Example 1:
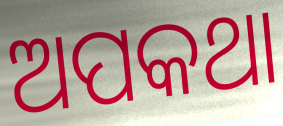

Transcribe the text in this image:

ଅପକଥା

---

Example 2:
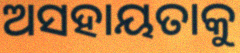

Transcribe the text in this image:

ଅସହାୟତାକୁ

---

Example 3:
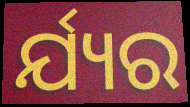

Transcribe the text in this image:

ର୍ଯ୍ୟର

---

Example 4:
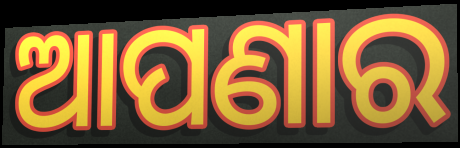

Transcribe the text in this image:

ଆପଣାର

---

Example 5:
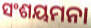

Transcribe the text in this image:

ସଂଶୟମନା